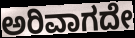
ಅರಿವಾಗದೇ